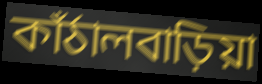
কাঁঠালবাড়িয়া